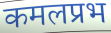
कमलप्रभ